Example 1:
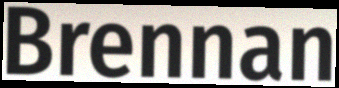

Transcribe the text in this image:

Brennan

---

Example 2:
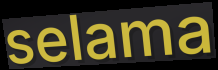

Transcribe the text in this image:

selama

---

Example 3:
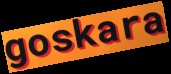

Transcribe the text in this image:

goskara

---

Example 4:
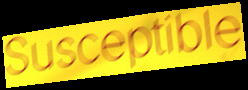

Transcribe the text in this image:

Susceptible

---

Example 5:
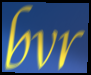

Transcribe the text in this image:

bvr